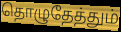
தொழுதேத்தும்